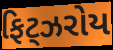
ફિટ્ઝરોય